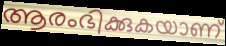
ആരംഭിക്കുകയാണ്